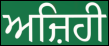
ਅਜ਼ਿਹੀ